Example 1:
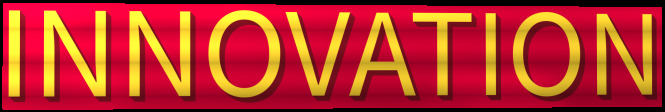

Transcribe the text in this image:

INNOVATION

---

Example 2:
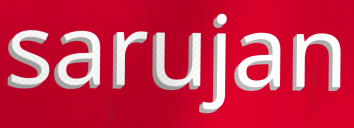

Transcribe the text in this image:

sarujan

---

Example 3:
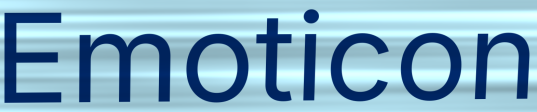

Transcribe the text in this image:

Emoticon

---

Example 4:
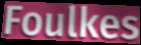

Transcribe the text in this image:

Foulkes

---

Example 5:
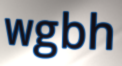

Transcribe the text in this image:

wgbh